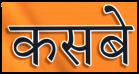
कसबे